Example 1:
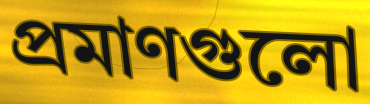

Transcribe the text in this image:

প্রমাণগুলো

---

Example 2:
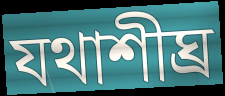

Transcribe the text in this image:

যথাশীঘ্র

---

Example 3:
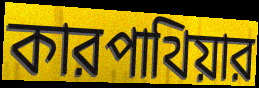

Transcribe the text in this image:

কারপাথিয়ার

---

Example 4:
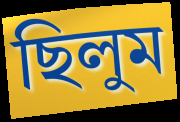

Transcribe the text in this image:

ছিলুম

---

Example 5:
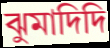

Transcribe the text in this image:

ঝুমাদিদি